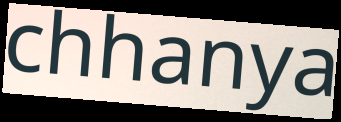
chhanya